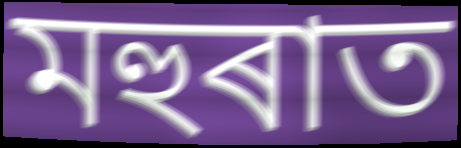
মহুৰাত